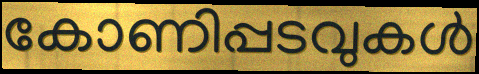
കോണിപ്പടവുകൾ